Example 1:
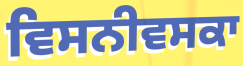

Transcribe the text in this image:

ਵਿਸਨੀਵਸਕਾ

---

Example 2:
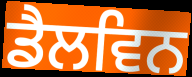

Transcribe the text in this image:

ਡੈਲਵਿਨ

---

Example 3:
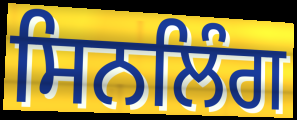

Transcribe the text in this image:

ਸਿਨਲਿੰਗ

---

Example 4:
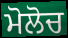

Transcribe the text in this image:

ਮੋਲੋਚ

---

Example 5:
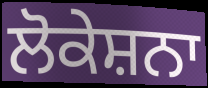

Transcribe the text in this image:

ਲੋਕੇਸ਼ਨਾ